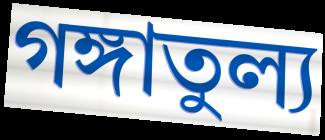
গঙ্গাতুল্য